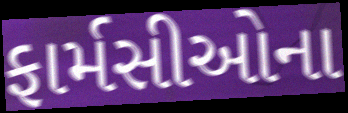
ફાર્મસીઓના